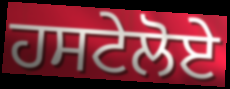
ਹਸਟੇਲੋਏ